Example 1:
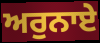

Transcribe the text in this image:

ਅਰੁਨਾਏ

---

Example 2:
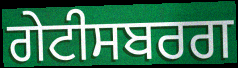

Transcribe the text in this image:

ਗੇਟੀਸਬਰਗ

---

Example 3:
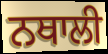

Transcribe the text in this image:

ਨਥਾਲੀ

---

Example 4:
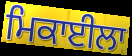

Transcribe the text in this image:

ਮਿਕਾਈਲਾ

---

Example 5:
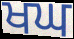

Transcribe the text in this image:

ਖਘ